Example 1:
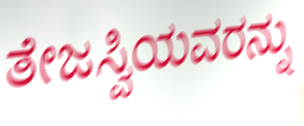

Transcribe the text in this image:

ತೇಜಸ್ವಿಯವರನ್ನು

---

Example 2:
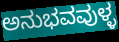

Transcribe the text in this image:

ಅನುಭವವುಳ್ಳ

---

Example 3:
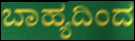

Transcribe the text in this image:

ಬಾಹ್ಯದಿಂದ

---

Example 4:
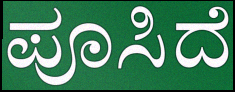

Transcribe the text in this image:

ಪೂಸಿದೆ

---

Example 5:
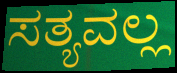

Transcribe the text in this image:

ಸತ್ಯವಲ್ಲ